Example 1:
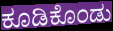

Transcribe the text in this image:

ಕೂಡಿಕೊಂಡು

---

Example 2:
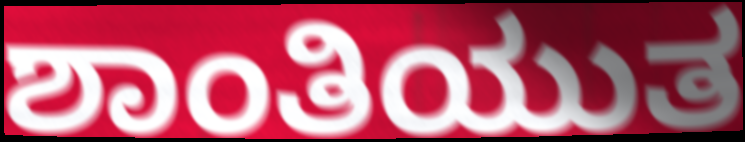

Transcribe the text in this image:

ಶಾಂತಿಯುತ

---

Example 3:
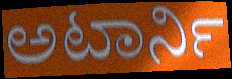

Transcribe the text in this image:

ಅಟಾರ್ನಿ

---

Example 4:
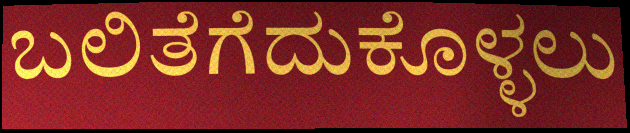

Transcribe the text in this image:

ಬಲಿತೆಗೆದುಕೊಳ್ಳಲು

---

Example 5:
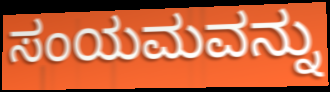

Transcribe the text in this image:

ಸಂಯಮವನ್ನು